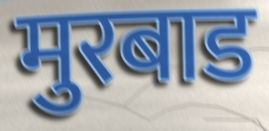
मुरबाड